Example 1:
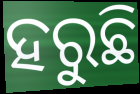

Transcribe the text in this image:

ହରୁଛି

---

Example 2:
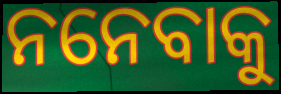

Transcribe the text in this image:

ନନେବାକୁ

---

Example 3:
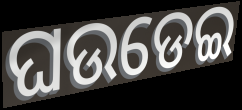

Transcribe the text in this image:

ଘଉଡେଇ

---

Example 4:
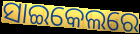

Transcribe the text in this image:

ସାଇକେଲରେ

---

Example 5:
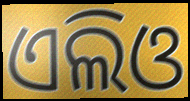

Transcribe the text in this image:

ଏଲିଓ